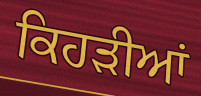
ਕਿਹੜੀਆਂ